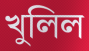
খুলিল